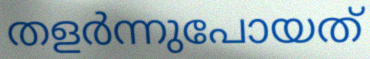
തളർന്നുപോയത്